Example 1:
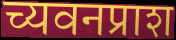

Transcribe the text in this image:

च्यवनप्राश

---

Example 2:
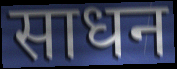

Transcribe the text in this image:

साधन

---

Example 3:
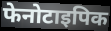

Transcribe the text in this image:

फेनोटाइपिक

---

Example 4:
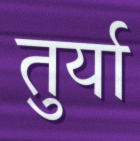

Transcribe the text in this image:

तुर्या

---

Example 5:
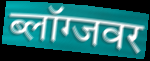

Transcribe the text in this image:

ब्लॉग्जवर